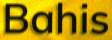
Bahis